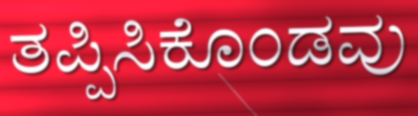
ತಪ್ಪಿಸಿಕೊಂಡವು